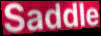
Saddle